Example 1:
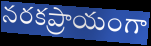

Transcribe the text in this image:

నరకప్రాయంగా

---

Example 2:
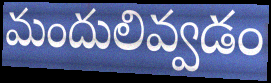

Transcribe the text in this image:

మందులివ్వడం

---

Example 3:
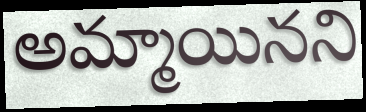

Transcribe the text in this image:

అమ్మాయినని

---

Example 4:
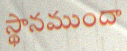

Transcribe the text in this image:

స్థానముందా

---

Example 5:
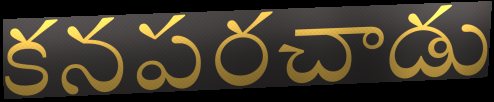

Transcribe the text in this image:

కనపరచాడు